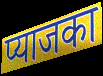
प्याजका